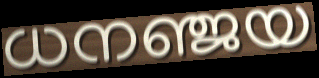
ധനഞ്ജയ